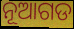
ନୂଆଗଡ